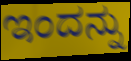
ಇಂದನ್ನು